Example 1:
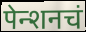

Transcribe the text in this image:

पेन्शनचं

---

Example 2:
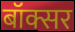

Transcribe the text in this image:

बॉक्सर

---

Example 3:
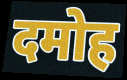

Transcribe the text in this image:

दमोह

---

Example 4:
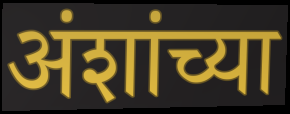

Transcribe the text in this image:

अंशांच्या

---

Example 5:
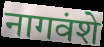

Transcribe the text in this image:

नागवंशे